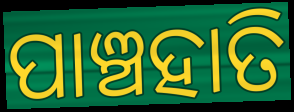
ପାଞ୍ଚହାତି